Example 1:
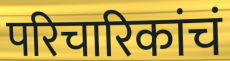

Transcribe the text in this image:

परिचारिकांचं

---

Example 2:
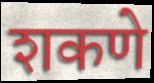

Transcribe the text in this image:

शकणे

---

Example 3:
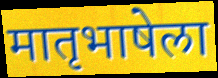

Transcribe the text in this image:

मातृभाषेला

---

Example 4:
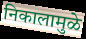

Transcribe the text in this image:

निकालामुळे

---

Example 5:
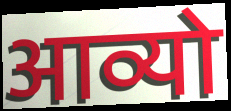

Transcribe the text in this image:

आव्यो